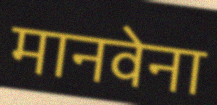
मानवेना